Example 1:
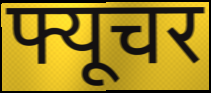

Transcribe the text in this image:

फ्यूचर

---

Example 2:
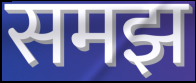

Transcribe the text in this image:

समझ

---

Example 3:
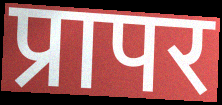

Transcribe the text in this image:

प्रापर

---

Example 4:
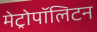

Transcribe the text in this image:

मेट्रोपॉलिटन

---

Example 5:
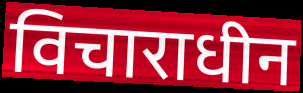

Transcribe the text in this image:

विचाराधीन